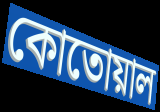
কোতোয়াল